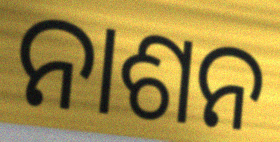
ନାଶନ